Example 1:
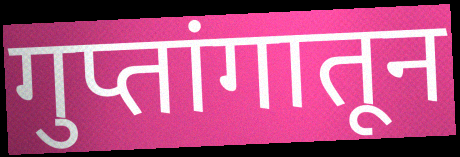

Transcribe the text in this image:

गुप्तांगातून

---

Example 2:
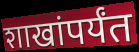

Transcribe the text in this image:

शाखांपर्यंत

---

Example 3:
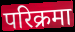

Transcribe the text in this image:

परिक्रमा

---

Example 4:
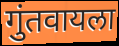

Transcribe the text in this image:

गुंतवायला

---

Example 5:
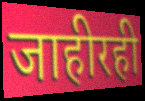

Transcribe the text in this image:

जाहीरही